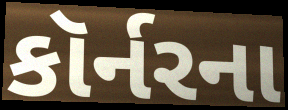
કૉર્નરના